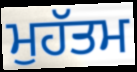
ਮੁਹੱਤਮ